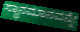
ಸ್ಥಾನಮಾನವನ್ನೇ